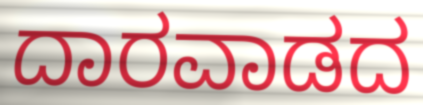
ದಾರವಾಡದ